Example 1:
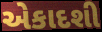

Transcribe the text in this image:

એકાદશી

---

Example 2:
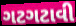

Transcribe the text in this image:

ગટગટાવી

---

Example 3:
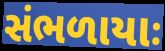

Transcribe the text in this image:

સંભળાયાઃ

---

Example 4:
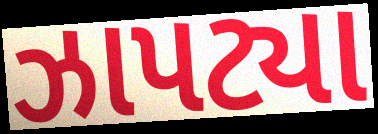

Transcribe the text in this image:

ઝાપટ્યા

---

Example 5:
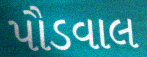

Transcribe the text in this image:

પૌડવાલ